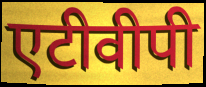
एटीवीपी